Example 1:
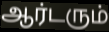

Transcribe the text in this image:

ஆர்டரும்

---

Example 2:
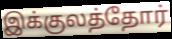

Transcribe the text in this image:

இக்குலத்தோர்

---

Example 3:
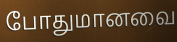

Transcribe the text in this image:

போதுமானவை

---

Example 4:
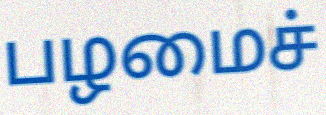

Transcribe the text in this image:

பழமைச்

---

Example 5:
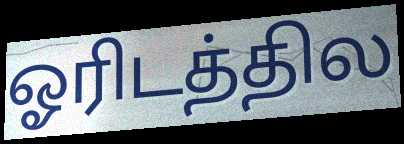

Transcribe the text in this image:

ஓரிடத்தில